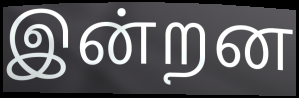
இன்றன